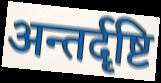
अन्तर्दृष्टि